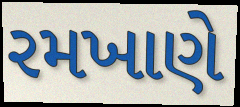
રમખાણે